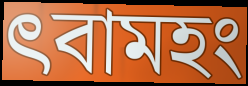
ৎবামহং